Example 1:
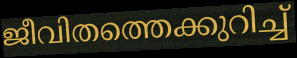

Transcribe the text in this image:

ജീവിതത്തെക്കുറിച്ച്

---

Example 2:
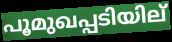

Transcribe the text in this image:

പൂമുഖപ്പടിയില്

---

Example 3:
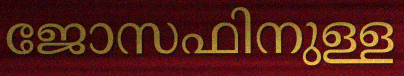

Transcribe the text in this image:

ജോസഫിനുള്ള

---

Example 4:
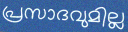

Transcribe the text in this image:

പ്രസാദവുമില്ല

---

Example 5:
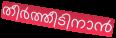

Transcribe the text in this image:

തീർത്തീടിനാൻ